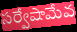
సర్వేషామేవ